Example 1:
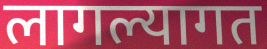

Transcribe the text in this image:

लागल्यागत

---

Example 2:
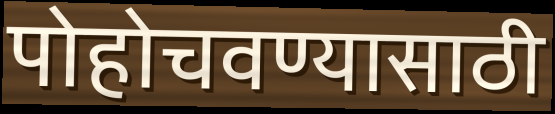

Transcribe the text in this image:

पोहोचवण्यासाठी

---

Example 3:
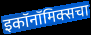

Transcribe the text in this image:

इकॉनॉमिक्सचा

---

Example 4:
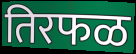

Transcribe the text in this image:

तिरफळ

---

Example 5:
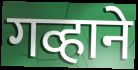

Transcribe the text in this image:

गव्हाने